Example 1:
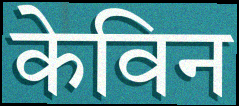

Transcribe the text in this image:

केविन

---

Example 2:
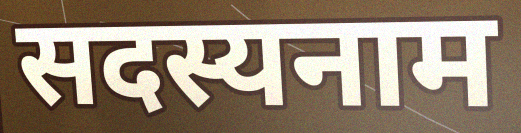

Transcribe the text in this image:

सदस्यनाम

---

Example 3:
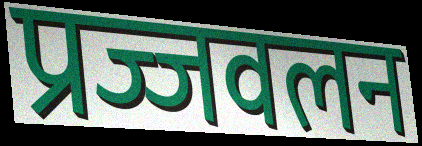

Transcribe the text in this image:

प्रज्‍जवलन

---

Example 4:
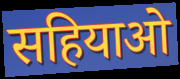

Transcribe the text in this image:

सहियाओ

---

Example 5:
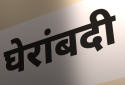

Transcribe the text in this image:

घेरांबदी